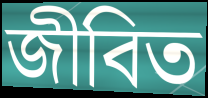
জীবিত